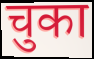
चुका